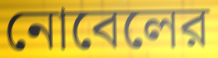
নোবেলের